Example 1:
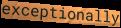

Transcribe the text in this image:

exceptionally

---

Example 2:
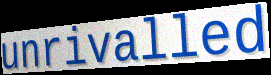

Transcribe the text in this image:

unrivalled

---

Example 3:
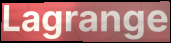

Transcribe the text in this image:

Lagrange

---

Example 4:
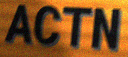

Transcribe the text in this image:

ACTN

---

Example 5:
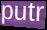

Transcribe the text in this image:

putr